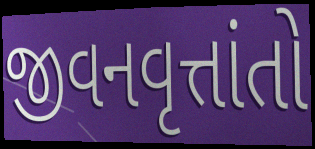
જીવનવૃત્તાંતો